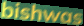
bishwas